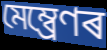
মেম্ব্ৰেণৰ